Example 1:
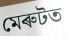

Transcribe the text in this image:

মেৰুটত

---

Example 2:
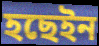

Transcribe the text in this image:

হছেইন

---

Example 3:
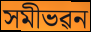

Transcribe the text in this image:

সমীভৱন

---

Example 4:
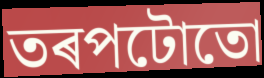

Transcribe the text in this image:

তৰপটোতো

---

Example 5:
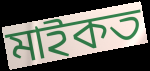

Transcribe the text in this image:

মাইকত